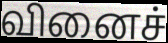
வினைச்